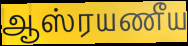
ஆஸ்ரயணீய